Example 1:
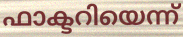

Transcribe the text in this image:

ഫാക്ടറിയെന്ന്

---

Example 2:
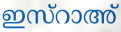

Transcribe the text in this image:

ഇസ്റാഅ്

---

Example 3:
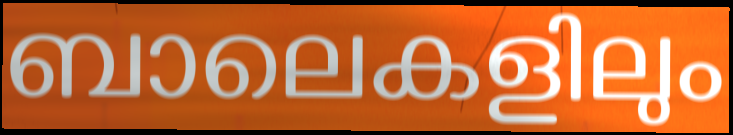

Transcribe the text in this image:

ബാലെകളിലും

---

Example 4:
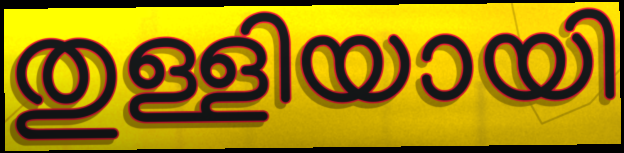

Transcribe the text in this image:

തുള്ളിയായി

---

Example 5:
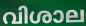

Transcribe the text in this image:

വിശാല